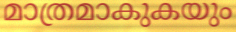
മാത്രമാകുകയും